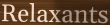
Relaxants